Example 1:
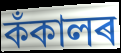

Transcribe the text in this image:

কঁকালৰ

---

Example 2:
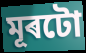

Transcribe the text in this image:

মূৰটো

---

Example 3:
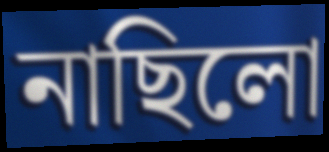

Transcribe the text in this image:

নাছিলো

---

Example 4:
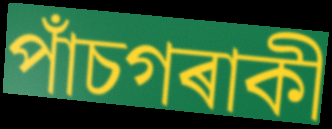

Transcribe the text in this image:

পাঁচগৰাকী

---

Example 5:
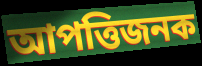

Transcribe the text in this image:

আপত্তিজনক